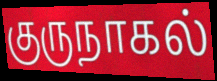
குருநாகல்